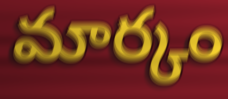
మార్కం